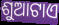
ଶୁଆଟାଏ